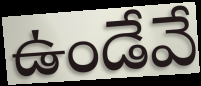
ఉండేవే